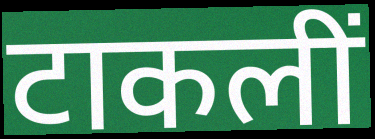
टाकलीं